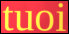
tuoi